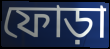
ফোড়া